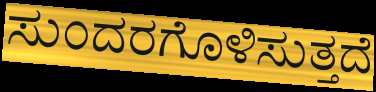
ಸುಂದರಗೊಳಿಸುತ್ತದೆ